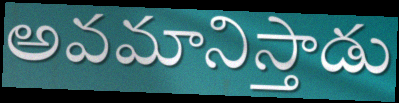
అవమానిస్తాడు